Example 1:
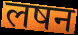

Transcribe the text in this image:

लषन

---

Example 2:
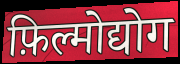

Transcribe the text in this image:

फ़िल्मोद्योग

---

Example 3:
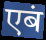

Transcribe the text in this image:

एबं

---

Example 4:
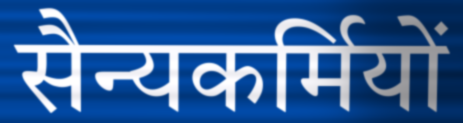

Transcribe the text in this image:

सैन्यकर्मियों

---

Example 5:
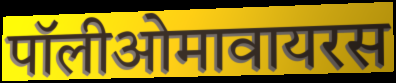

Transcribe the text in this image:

पॉलीओमावायरस